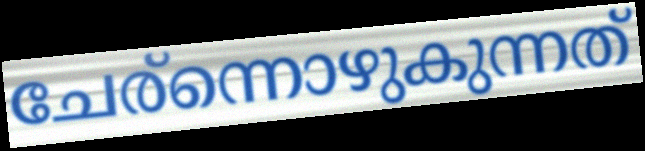
ചേര്ന്നൊഴുകുന്നത്